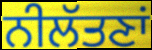
ਨੀਲੱਤਣਾਂ